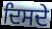
ਦਿਸਦੇ